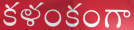
కళంకంగా